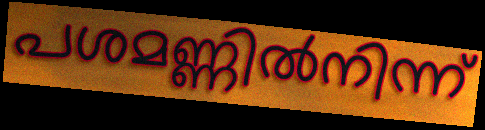
പശമണ്ണിൽനിന്ന്